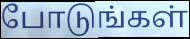
போடுங்கள்